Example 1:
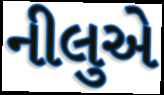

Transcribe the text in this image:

નીલુએ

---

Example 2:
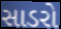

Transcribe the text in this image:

સાડરો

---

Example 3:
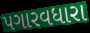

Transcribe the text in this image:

પગારવધારા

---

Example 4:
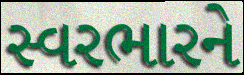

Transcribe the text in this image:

સ્વરભારને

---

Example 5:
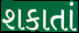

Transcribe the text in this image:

શકાતાં